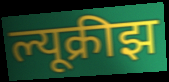
ल्यूक्रीझ